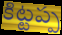
కిట్టప్ప